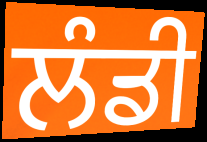
ਲੰਡੀ